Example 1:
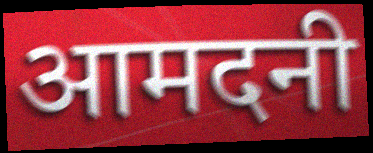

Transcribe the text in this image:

आमदनी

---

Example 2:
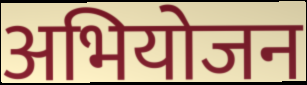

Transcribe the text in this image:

अभियोजन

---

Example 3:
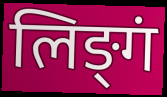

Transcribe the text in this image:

लिङ्गं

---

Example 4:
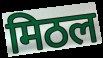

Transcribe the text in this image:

मिठल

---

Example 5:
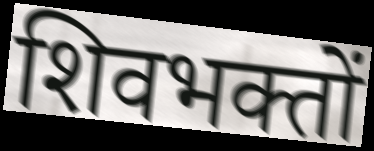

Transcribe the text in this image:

शिवभक्तों